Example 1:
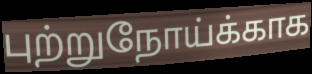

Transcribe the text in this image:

புற்றுநோய்க்காக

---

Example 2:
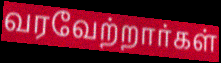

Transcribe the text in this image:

வரவேற்றார்கள்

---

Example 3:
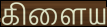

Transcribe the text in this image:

கிளைய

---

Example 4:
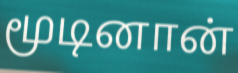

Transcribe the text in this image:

மூடினான்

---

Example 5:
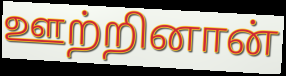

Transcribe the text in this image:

ஊற்றினான்